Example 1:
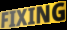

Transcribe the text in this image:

FIXING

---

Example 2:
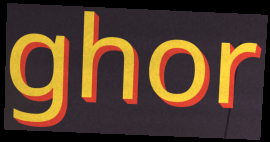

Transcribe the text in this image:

ghor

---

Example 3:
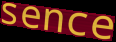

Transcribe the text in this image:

sence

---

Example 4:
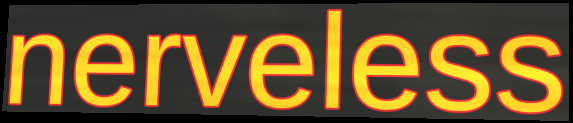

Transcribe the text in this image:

nerveless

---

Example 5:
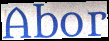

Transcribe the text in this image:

Abor